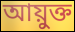
আয়ুক্ত